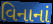
વિનાનાં